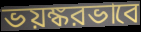
ভয়ঙ্করভাবে